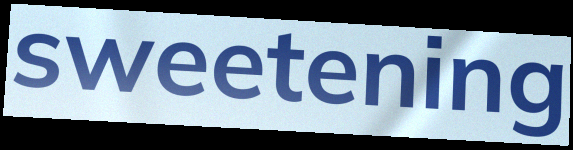
sweetening